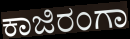
ಕಾಜಿರಂಗಾ